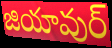
జియావుర్